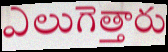
ఎలుగెత్తారు